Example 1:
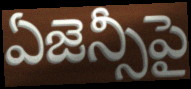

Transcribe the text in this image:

ఏజెన్సీపై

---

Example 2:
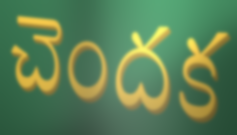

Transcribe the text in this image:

చెందక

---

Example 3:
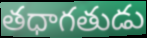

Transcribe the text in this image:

తధాగతుడు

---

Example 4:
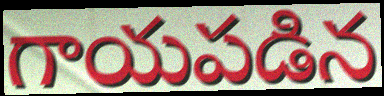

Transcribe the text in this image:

గాయపడిన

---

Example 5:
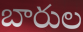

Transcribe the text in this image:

బారుల